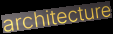
architecture